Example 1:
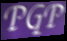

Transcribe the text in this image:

PGP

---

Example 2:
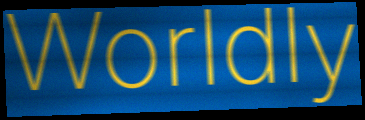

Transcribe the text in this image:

Worldly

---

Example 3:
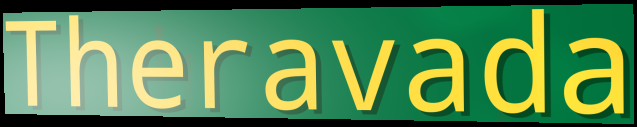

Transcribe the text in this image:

Theravada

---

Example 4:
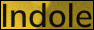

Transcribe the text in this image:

Indole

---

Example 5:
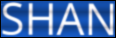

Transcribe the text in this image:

SHAN